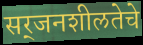
सर्जनशीलतेचे